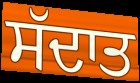
ਸੱਦਾਤ